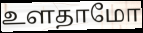
உளதாமோ